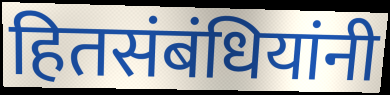
हितसंबंधियांनी